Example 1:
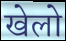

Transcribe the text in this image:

खेलो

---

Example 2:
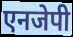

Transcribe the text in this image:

एनजेपी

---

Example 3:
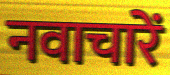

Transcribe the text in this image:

नवाचारें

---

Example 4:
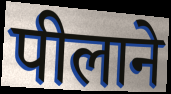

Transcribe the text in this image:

पीलाने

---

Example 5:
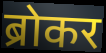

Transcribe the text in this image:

ब्रोकर